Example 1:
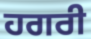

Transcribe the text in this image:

ਹਗਰੀ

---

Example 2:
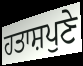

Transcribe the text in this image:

ਹਤਾਸ਼ਪੁਣੇ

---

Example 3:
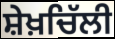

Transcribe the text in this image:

ਸ਼ੇਖ਼ਚਿੱਲੀ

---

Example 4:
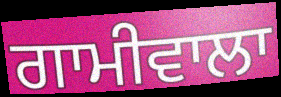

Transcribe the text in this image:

ਗਾਮੀਵਾਲਾ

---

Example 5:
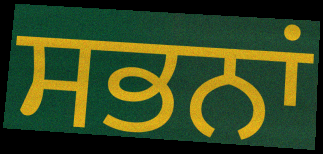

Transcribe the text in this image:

ਸਭਨਾਂ